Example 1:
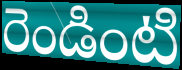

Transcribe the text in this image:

రెండింటి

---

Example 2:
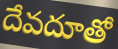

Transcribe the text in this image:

దేవదూతో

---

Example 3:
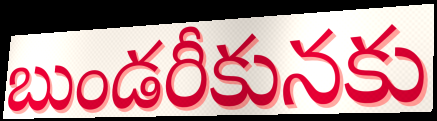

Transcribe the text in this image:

బుండరీకునకు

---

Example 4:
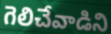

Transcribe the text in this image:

గెలిచేవాడిని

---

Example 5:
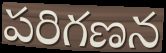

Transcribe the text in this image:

పరిగణన